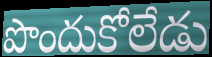
పొందుకోలేడు